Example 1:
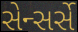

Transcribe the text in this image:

સેન્સર્સે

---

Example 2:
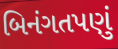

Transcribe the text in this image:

બિનંગતપણું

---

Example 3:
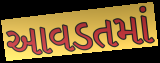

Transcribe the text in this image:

આવડતમાં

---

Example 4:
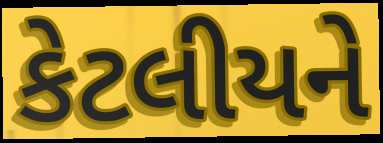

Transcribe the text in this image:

કેટલીયને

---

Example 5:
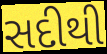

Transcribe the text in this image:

સદીથી